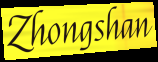
Zhongshan